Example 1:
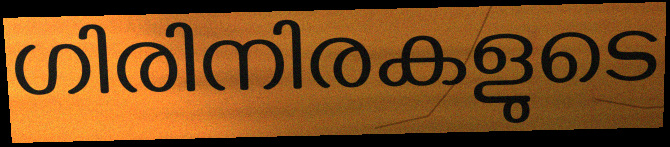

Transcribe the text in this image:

ഗിരിനിരകളുടെ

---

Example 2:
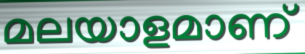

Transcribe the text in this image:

മലയാളമാണ്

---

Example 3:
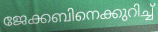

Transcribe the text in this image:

ജേക്കബിനെക്കുറിച്ച്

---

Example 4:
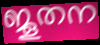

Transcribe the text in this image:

ജൂതന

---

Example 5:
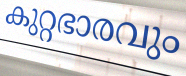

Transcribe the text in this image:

കുറ്റഭാരവും